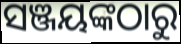
ସଞ୍ଜୟଙ୍କଠାରୁ